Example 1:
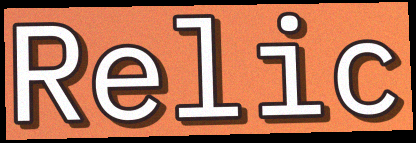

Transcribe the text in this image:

Relic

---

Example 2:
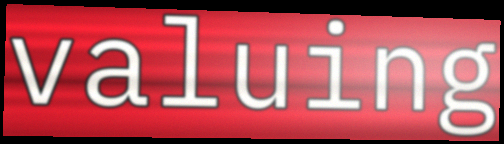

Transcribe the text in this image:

valuing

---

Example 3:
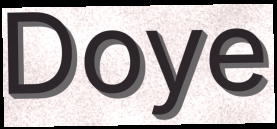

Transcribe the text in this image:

Doye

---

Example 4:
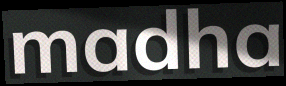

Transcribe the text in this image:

madha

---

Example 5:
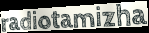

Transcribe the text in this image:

radiotamizha